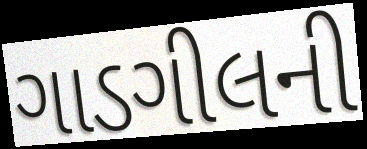
ગાડગીલની